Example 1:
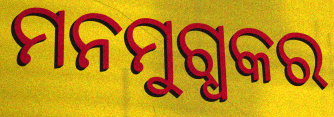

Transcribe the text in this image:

ମନମୁଗ୍ଧକର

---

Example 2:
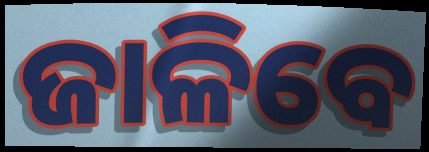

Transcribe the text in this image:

ଜାଳିବେ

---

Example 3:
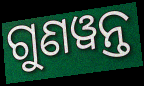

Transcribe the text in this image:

ଗୁଣୱନ୍ତ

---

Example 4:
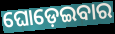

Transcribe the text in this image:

ଘୋଡ଼େଇବାର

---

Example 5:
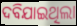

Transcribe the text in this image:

ଦବିଯାଇଥିଲା